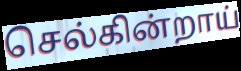
செல்கின்றாய்